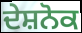
ਦੇਸ਼ਨੋਕ